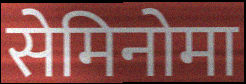
सेमिनोमा